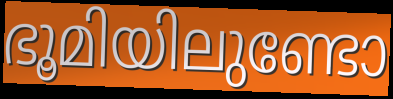
ഭൂമിയിലുണ്ടോ